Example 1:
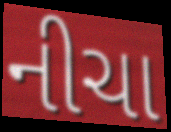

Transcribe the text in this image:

નીચા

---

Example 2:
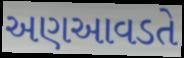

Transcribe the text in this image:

અણઆવડતે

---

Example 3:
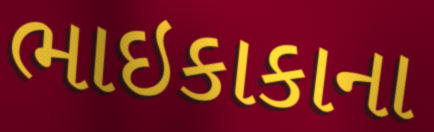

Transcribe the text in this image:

ભાઇકાકાના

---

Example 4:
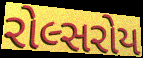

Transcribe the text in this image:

રોલ્સરોય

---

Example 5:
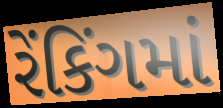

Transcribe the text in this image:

રેંકિંગમાં